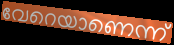
വേറെയാണെന്ന്